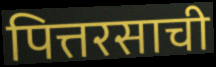
पित्तरसाची